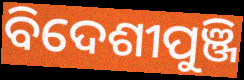
ବିଦେଶୀପୁଞ୍ଜି